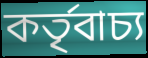
কর্তৃবাচ্য